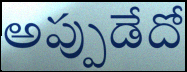
అప్పుడేదో